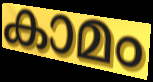
കാമം